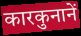
कारकुनानें